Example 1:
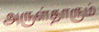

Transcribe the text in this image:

அருள்தாரும்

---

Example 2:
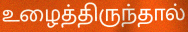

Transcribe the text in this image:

உழைத்திருந்தால்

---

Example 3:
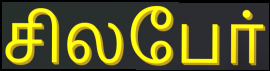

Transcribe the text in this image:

சிலபேர்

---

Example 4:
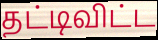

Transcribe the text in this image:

தட்டிவிட்ட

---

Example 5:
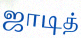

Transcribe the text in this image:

ஜாடித்